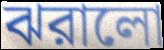
ঝরালো